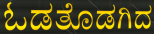
ಓಡತೊಡಗಿದ